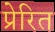
प्रेरित